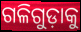
ଗଳିଗୁଡ଼ାକୁ